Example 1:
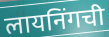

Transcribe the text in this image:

लायनिंगची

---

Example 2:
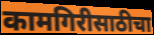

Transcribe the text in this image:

कामगिरीसाठीचा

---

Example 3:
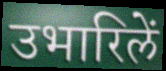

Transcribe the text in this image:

उभारिलें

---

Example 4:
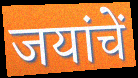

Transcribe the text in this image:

जयांचें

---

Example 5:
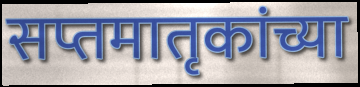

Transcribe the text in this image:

सप्तमातृकांच्या